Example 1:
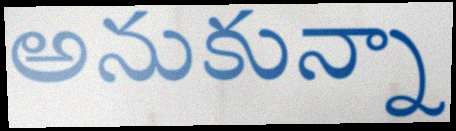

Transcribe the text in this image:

అనుకున్నా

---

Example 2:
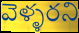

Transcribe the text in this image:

వెళ్ళరని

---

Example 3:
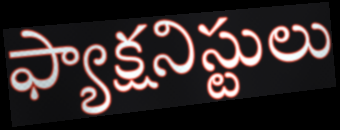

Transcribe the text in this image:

ఫ్యాక్షనిస్టులు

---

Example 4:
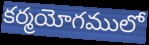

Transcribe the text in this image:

కర్మయోగములో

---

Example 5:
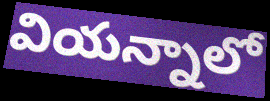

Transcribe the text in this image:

వియన్నాలో